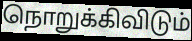
நொறுக்கிவிடும்